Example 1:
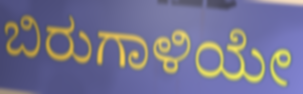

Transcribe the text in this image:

ಬಿರುಗಾಳಿಯೇ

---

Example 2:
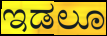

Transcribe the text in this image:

ಇಡಲೂ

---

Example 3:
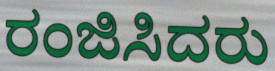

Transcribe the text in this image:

ರಂಜಿಸಿದರು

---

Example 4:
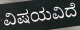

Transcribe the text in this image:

ವಿಷಯವಿದೆ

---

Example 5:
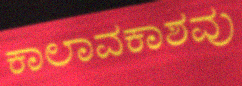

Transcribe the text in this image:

ಕಾಲಾವಕಾಶವು